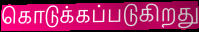
கொடுக்கப்படுகிறது